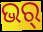
ଭର୍